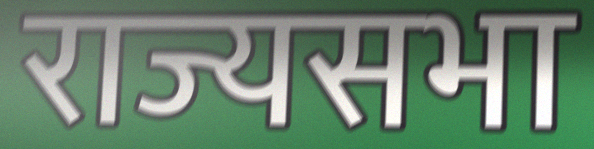
राज्यसभा